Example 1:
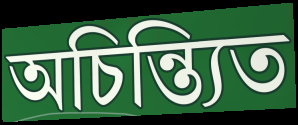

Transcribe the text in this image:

অচিন্ত্যিত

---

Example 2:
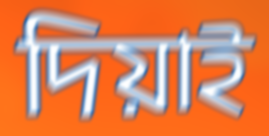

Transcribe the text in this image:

দিয়াই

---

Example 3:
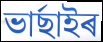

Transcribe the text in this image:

ভাৰ্ছাইৰ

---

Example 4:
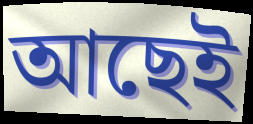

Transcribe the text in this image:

আছেই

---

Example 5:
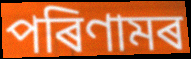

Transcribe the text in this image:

পৰিণামৰ